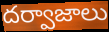
దర్వాజాలు